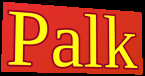
Palk